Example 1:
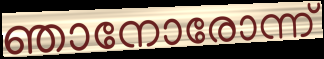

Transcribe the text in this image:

ഞാനോരോന്ന്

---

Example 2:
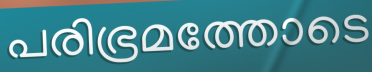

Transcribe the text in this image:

പരിഭ്രമത്തോടെ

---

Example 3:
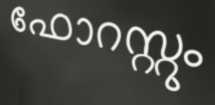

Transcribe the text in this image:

ഫോറസ്റ്റും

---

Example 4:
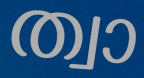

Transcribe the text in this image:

ത്വാ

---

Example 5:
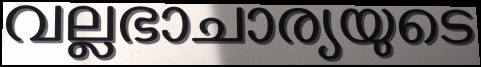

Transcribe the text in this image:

വല്ലഭാചാര്യയുടെ